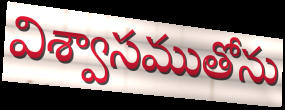
విశ్వాసముతోను